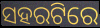
ସହରଟିରେ